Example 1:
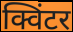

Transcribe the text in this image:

क्विंटर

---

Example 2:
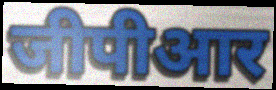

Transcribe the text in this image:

जीपीआर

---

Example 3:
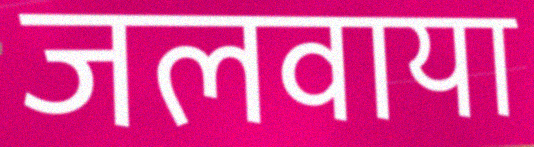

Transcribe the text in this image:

जलवाया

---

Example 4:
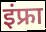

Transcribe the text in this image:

इंफ्रा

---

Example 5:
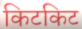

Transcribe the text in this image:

किटकिट